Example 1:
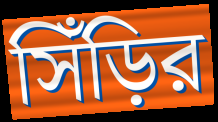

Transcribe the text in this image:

সিঁড়ির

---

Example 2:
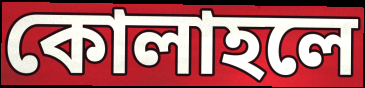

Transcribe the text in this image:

কোলাহলে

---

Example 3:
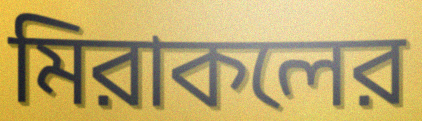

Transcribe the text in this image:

মিরাকলের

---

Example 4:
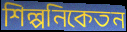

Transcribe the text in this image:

শিল্পনিকেতন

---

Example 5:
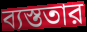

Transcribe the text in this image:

ব্যস্ততার